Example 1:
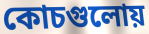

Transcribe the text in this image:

কোচগুলোয়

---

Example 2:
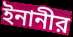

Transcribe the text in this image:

ইনানীর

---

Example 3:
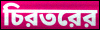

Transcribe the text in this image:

চিরতরের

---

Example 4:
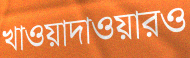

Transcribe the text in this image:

খাওয়াদাওয়ারও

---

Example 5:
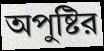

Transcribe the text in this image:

অপুষ্টির